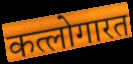
कत्लोगारत